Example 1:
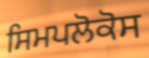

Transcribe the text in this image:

ਸਿਮਪਲੋਕੋਸ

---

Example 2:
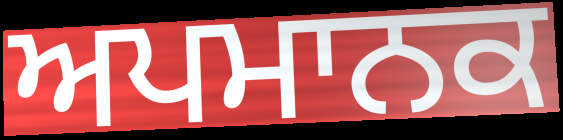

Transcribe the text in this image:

ਅਪਮਾਨਕ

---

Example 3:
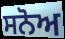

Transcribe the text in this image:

ਸਨੋਅ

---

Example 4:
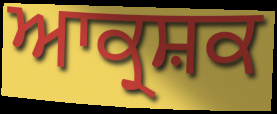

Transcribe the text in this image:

ਆਕ੍ਰਸ਼ਕ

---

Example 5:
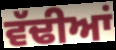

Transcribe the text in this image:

ਵੱਢੀਆਂ